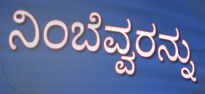
ನಿಂಬೆವ್ವರನ್ನು